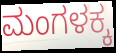
ಮಂಗಳಕ್ಕ